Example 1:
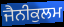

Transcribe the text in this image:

ਜੈਨੀਕੁਲਮ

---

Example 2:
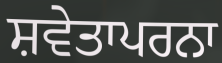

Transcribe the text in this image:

ਸ਼ਵੇਤਾਪਰਨਾ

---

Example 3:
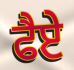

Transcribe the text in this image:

ਫੈਏ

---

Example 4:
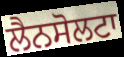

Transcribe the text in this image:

ਲੈਨਸੋਲਟਾ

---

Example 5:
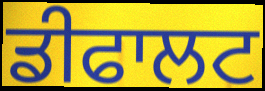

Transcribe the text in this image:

ਡੀਫਾਲਟ